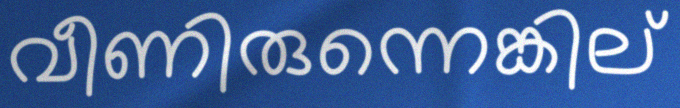
വീണിരുന്നെങ്കില്